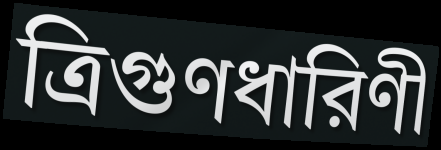
ত্রিগুণধারিণী